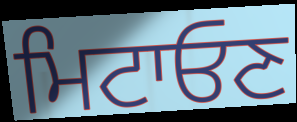
ਮਿਟਾਓਣ